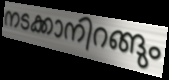
നടക്കാനിറങ്ങും